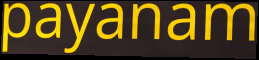
payanam